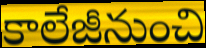
కాలేజీనుంచి